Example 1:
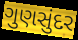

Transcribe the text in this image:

ગુણસુંદર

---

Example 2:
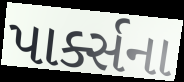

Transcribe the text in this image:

પાર્ક્સના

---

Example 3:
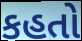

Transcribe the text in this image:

કહતો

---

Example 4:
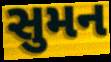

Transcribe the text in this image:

સુમન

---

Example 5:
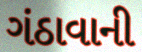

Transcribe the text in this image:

ગંઠાવાની